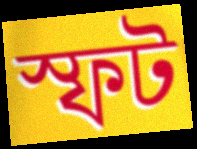
স্ফট